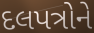
દલપત્રોને